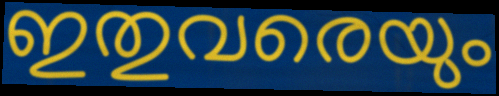
ഇതുവരെയും